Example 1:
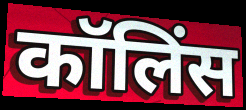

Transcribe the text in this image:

कॉलिंस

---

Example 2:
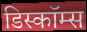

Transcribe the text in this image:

डिस्कॉम्स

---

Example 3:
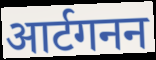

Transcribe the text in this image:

आर्टगनन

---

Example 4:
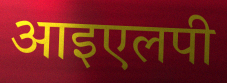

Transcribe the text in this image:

आइएलपी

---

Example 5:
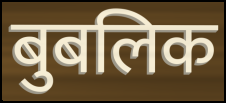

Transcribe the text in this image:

बुबलिक